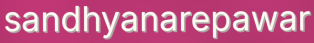
sandhyanarepawar